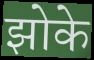
झोके